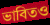
ভাবিতও